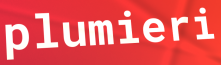
plumieri